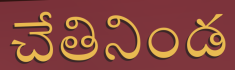
చేతినిండ